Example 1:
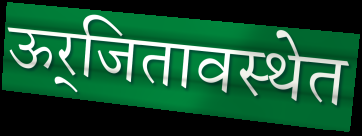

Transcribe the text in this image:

ऊर्जितावस्थेत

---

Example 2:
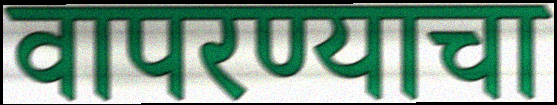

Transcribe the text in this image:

वापरण्याचा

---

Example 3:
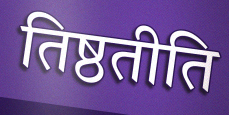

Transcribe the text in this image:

तिष्ठतीति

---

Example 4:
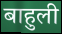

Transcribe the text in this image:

बाहुली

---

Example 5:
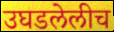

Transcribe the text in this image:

उघडलेलीच